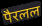
पैरलल